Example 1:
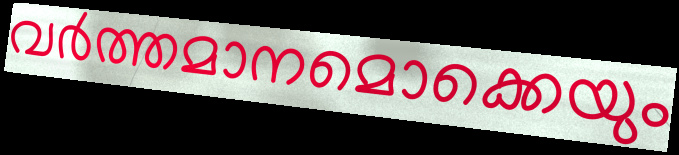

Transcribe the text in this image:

വർത്തമാനമൊക്കെയും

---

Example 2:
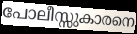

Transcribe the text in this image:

പോലീസ്സുകാരനെ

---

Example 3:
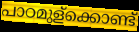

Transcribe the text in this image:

പാഠമുള്ക്കൊണ്ട്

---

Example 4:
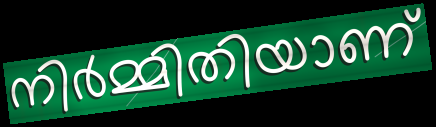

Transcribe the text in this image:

നിർമ്മിതിയാണ്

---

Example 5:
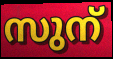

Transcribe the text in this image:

സുന്